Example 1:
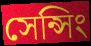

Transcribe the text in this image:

সেন্সিং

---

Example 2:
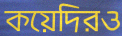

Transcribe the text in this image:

কয়েদিরও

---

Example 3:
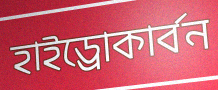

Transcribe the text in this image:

হাইড্রোকার্বন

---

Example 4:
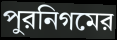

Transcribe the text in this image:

পুরনিগমের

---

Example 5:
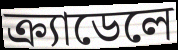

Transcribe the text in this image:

ক্র্যাডেলে